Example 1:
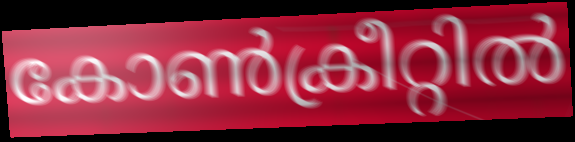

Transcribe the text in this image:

കോൺക്രീറ്റിൽ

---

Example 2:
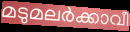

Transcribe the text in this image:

മടുമലർക്കാവീ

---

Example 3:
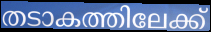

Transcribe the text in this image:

തടാകത്തിലേക്ക്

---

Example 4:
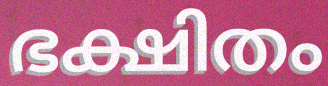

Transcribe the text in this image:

ഭക്ഷിതം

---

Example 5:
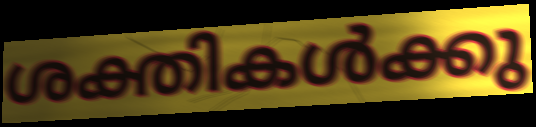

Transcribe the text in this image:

ശക്തികൾക്കു